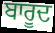
ਬਾਰੂਦ